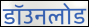
डॉउनलोड